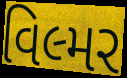
વિલ્મર